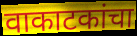
वाकाटकांचा